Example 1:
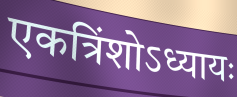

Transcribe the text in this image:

एकत्रिंशोऽध्यायः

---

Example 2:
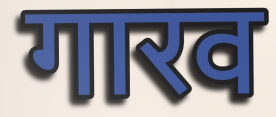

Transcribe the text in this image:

गारव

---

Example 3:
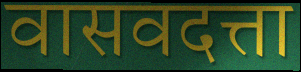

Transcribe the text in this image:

वासवदत्ता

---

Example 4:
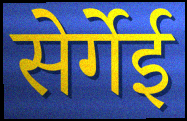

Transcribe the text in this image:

सेर्गेई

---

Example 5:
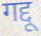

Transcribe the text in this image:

गद्दू